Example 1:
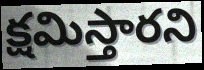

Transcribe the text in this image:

క్షమిస్తారని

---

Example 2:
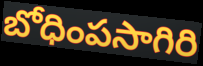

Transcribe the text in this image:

బోధింపసాగిరి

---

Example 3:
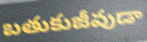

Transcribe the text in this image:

బతుకుజీవుడా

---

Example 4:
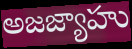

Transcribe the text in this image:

అజజ్యాహు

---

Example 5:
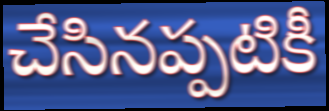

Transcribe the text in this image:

చేసినప్పటికీ